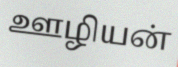
ஊழியன்